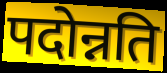
पदोन्नति